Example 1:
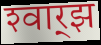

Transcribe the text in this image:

श्वार्झ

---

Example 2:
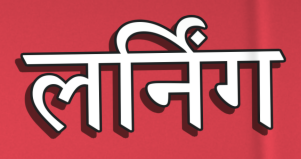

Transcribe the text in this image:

लर्निंग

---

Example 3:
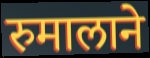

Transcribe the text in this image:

रुमालाने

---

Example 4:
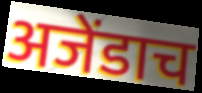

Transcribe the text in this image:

अजेंडाच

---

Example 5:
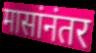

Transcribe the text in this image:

मासांनंतर